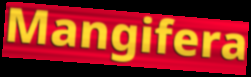
Mangifera